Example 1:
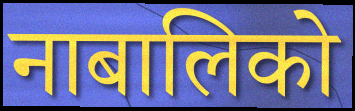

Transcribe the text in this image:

नाबालिको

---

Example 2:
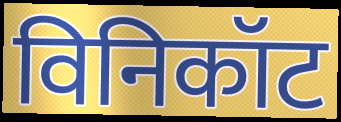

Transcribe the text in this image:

विनिकॉट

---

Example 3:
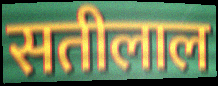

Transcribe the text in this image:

सतीलाल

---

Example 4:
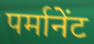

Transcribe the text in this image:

पर्मानेंट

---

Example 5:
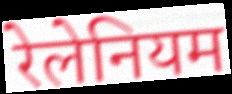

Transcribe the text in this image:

रेलेनियम